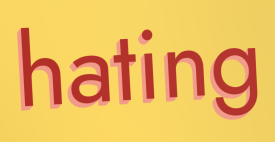
hating